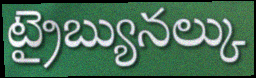
ట్రైబ్యునల్కు